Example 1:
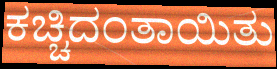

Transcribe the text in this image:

ಕಚ್ಚಿದಂತಾಯಿತು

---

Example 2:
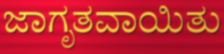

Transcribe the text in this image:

ಜಾಗೃತವಾಯಿತು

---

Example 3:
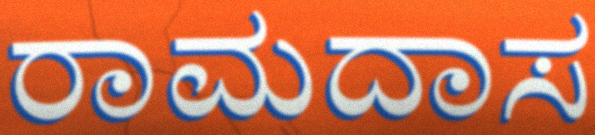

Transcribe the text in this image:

ರಾಮದಾಸ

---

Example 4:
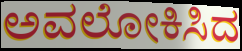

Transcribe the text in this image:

ಅವಲೋಕಿಸಿದ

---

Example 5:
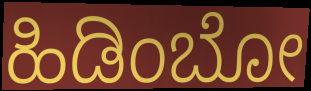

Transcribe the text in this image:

ಹಿಡಿಂಬೋ